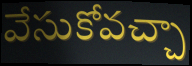
వేసుకోవచ్చా